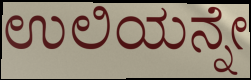
ಉಲಿಯನ್ನೇ